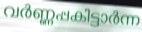
വർണ്ണപ്പകിട്ടാർന്ന